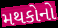
મથકોનો